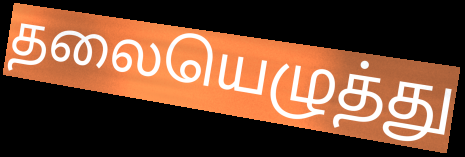
தலையெழுத்து